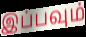
இப்பவும்